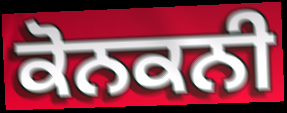
ਕੋਨਕਨੀ